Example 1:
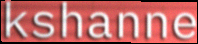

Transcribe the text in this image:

kshanne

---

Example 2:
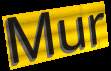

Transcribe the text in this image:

Mur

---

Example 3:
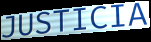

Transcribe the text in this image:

JUSTICIA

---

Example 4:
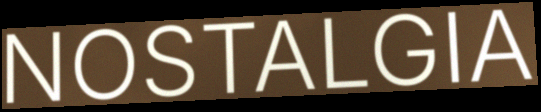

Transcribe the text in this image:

NOSTALGIA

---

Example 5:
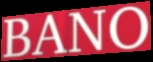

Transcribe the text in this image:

BANO